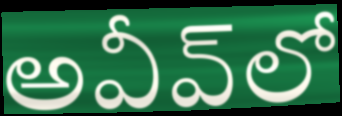
అవీవ్‌లో